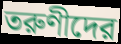
তরুণীদের